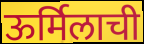
ऊर्मिलाची